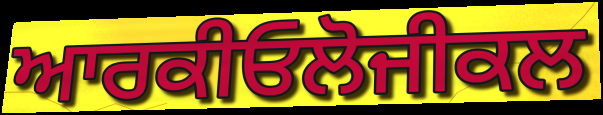
ਆਰਕੀਓਲੋਜੀਕਲ